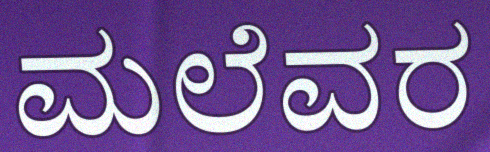
ಮಲೆವರ